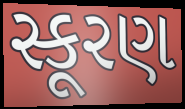
સ્કૂરણ